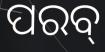
ପରବ୍